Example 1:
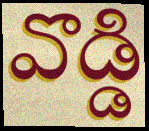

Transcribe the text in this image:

వొడ్డి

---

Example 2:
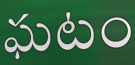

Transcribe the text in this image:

ఘటం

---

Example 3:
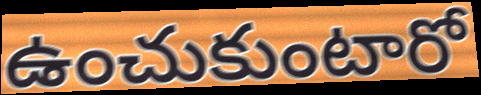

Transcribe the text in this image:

ఉంచుకుంటారో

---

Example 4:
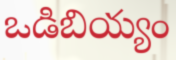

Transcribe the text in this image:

ఒడిబియ్యం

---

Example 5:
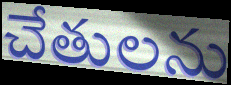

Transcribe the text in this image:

చేతులను